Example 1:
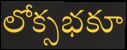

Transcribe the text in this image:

లోక్సభకూ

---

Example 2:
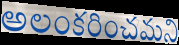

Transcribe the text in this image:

అలంకరించమని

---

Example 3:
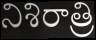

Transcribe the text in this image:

నిశిరాత్రి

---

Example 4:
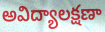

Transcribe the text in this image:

అవిద్యాలక్షణా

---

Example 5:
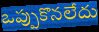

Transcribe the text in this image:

ఒప్పుకొనలేదు